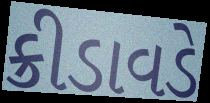
ક્રીડાવડે